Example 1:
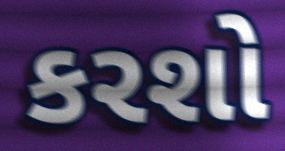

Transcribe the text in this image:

કરશો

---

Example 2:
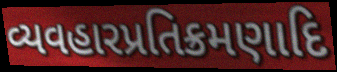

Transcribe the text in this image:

વ્યવહારપ્રતિક્રમણાદિ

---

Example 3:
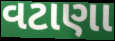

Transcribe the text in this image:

વટાણા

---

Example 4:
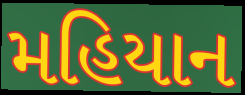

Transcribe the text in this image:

મહિયાન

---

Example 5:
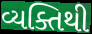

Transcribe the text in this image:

વ્યક્તિથી